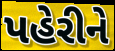
પહેરીને